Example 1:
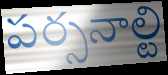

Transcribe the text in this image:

పర్సనాల్టి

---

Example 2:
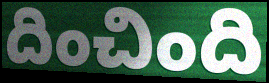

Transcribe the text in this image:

దించింది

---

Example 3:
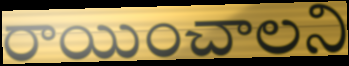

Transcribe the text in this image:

రాయించాలని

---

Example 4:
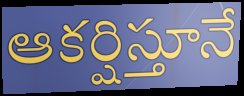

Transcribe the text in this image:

ఆకర్షిస్తూనే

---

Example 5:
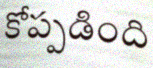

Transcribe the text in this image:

కోప్పడింది